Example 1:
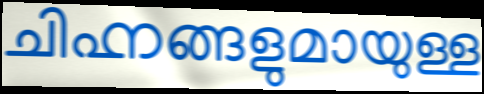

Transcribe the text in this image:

ചിഹ്നങ്ങളുമായുള്ള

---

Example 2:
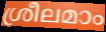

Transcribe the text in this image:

ശ്രീലമാം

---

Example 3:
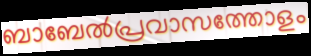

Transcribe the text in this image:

ബാബേൽപ്രവാസത്തോളം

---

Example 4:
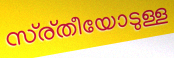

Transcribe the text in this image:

സ്ര്തീയോടുള്ള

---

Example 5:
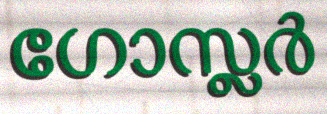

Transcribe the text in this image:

ഗോസ്ലർ